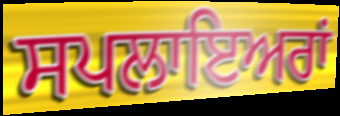
ਸਪਲਾਇਅਰਾਂ